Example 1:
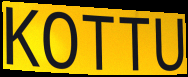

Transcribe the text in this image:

KOTTU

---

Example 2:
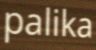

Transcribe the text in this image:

palika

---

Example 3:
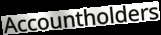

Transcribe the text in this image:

Accountholders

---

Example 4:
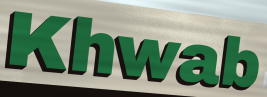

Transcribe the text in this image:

Khwab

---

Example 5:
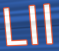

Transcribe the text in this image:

LII